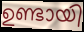
ഉണ്ടായി